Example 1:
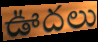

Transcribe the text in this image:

ఊదలు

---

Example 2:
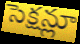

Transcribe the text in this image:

సెక్షన్లూ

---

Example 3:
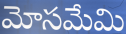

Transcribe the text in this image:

మోసమేమి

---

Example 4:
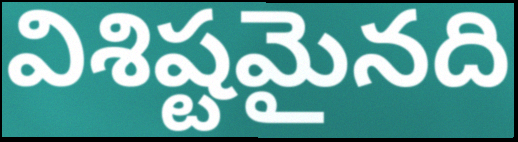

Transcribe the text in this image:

విశిష్టమైనది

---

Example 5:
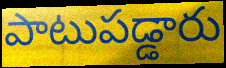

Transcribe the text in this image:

పాటుపడ్డారు